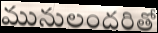
మునులందరితో